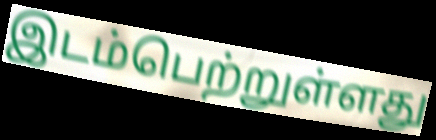
இடம்பெற்றுள்ளது